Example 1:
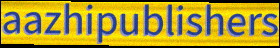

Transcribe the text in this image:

aazhipublishers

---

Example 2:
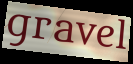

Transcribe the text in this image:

gravel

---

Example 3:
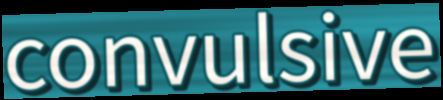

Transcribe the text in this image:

convulsive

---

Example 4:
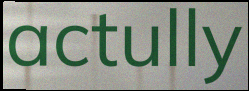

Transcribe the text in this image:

actully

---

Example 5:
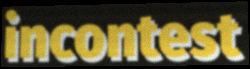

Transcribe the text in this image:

incontest